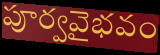
పూర్వవైభవం